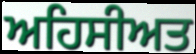
ਅਹਿਸੀਅਤ